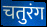
चतुरंग